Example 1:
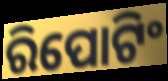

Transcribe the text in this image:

ରିପୋଟିଂ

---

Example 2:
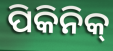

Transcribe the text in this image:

ପିକିନିକ୍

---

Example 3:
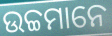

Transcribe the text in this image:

ଉଚ୍ଚମାନେ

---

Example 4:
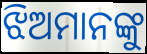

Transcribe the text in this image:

ଝିଅମାନଙ୍କୁ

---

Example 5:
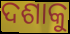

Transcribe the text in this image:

ଦଶାକୁ